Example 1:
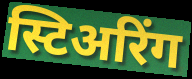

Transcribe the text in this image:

स्टिअरिंग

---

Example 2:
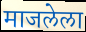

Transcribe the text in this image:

माजलेला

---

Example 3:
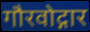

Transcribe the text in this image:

गौरवोद्गार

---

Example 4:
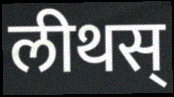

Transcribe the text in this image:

लीथस्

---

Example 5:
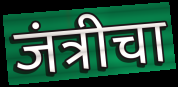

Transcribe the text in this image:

जंत्रीचा